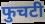
फुचटी